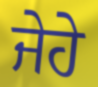
ਜੇਹੇ